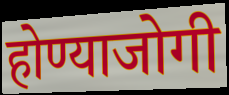
होण्याजोगी